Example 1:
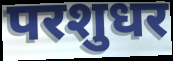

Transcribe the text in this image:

परशुधर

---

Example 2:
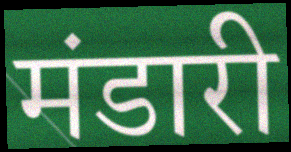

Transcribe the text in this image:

मंडारी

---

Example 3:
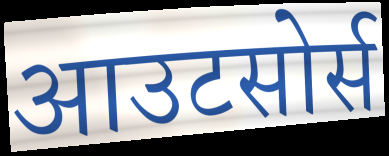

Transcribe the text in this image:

आउटसोर्स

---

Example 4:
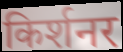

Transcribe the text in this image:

किर्शनर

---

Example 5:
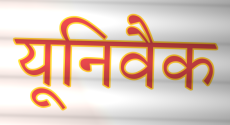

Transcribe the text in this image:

यूनिवैक